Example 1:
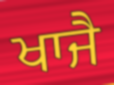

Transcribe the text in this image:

ਖਾਜੈ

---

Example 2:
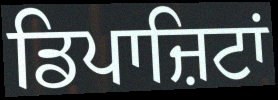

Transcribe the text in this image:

ਡਿਪਾਜ਼ਿਟਾਂ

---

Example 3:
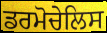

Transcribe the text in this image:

ਡਰਮੋਚੇਲਿਸ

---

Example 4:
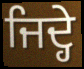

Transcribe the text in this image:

ਜਿਦ੍ਹੇ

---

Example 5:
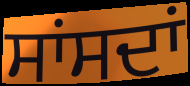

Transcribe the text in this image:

ਸਾਂਸਦਾਂ